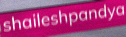
shaileshpandya